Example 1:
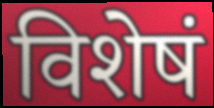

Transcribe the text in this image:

विशेषं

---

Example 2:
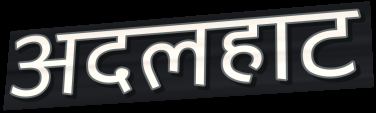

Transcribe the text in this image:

अदलहाट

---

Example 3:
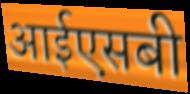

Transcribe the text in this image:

आईएसबी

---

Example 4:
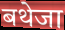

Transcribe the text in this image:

बथेजा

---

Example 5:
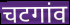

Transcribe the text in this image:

चटगांव